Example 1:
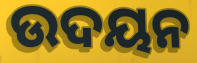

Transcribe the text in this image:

ଉଦୟନ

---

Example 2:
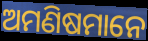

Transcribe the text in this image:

ଅମଣିଷମାନେ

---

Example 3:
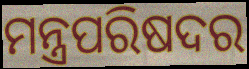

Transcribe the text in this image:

ମନ୍ତ୍ରପରିଷଦର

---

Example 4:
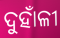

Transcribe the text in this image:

ଦୁହାଁଳୀ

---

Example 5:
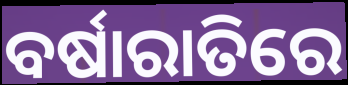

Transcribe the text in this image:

ବର୍ଷାରାତିରେ